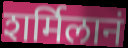
शर्मिलानं